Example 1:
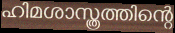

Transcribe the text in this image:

ഹിമശാസ്ത്രത്തിന്റെ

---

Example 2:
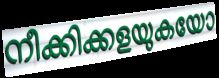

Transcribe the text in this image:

നീക്കിക്കളയുകയോ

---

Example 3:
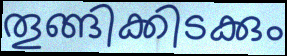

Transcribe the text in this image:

തൂങ്ങിക്കിടക്കും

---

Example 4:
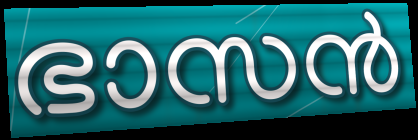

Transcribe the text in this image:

ഭാസൻ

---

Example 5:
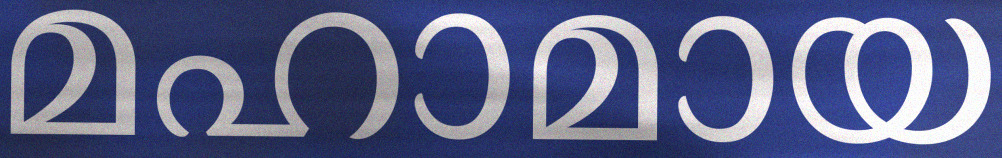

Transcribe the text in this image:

മഹാമായ